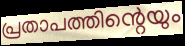
പ്രതാപത്തിന്റെയും